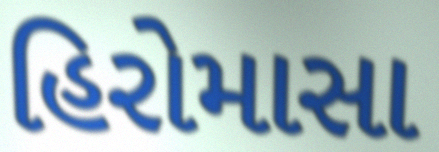
હિરોમાસા